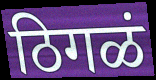
ठिगळं